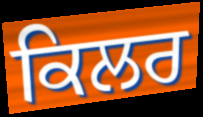
ਕਿਲਰ